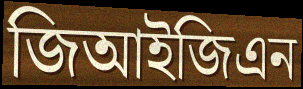
জিআইজিএন